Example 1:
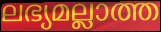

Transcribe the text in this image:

ലഭ്യമല്ലാത്ത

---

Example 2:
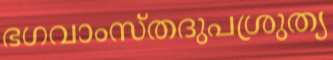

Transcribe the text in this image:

ഭഗവാംസ്തദുപശ്രുത്യ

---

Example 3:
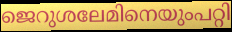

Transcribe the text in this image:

ജെറുശലേമിനെയുംപറ്റി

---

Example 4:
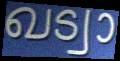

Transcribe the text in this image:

ഖട്വാ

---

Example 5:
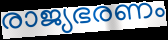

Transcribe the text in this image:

രാജ്യഭരണം